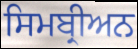
ਸਿਮਬ੍ਰੀਅਨ